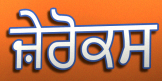
ਜ਼ੇਰੋਕਸ